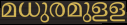
മധുരമുളള